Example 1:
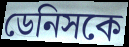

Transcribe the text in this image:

ডেনিসকে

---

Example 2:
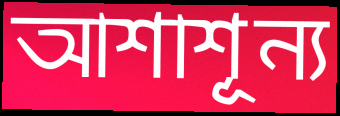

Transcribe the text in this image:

আশাশূন্য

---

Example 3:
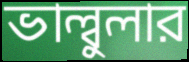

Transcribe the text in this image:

ভাল্বুলার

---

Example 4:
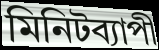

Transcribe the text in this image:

মিনিটব্যাপী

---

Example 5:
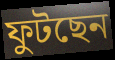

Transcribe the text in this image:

ফুটছেন